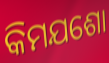
କିମଯଶୋ